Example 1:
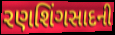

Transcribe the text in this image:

રણશિંગસાદની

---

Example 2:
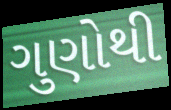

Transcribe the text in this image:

ગુણોથી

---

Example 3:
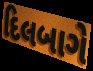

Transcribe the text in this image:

દિલબાગે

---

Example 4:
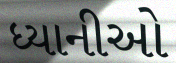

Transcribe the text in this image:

ધ્યાનીઓ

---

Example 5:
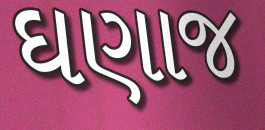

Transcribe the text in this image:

ઘણાજ